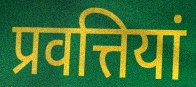
प्रवत्तियां